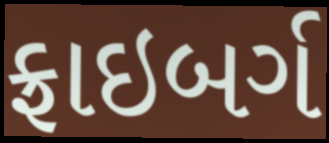
ફ્રાઇબર્ગ